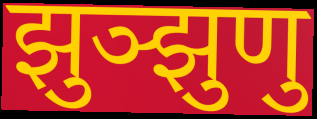
झुञ्झुणु